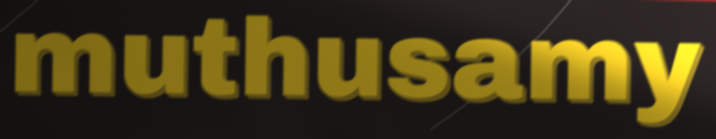
muthusamy